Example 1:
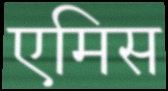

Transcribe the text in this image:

एमिस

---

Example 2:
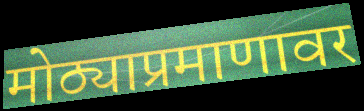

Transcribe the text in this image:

मोठ्याप्रमाणावर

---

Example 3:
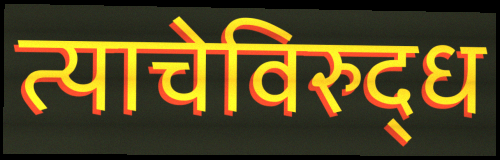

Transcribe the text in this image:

त्याचेविरुद्ध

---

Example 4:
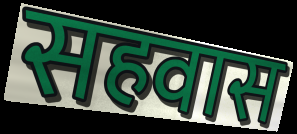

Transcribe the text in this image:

सहवास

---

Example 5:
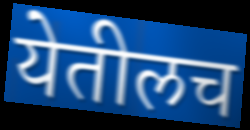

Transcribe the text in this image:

येतीलच